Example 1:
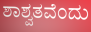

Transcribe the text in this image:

ಶಾಶ್ವತವೆಂದು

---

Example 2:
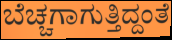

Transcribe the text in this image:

ಬೆಚ್ಚಗಾಗುತ್ತಿದ್ದಂತೆ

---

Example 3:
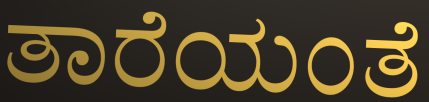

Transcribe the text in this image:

ತಾರೆಯಂತೆ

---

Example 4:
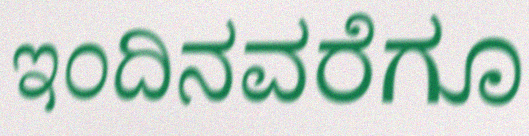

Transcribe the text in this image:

ಇಂದಿನವರೆಗೂ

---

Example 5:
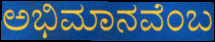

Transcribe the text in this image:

ಅಭಿಮಾನವೆಂಬ